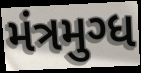
મંત્રમુગ્ધ